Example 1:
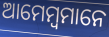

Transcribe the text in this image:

ଆମେମ୍ବମାନେ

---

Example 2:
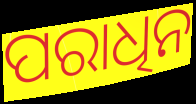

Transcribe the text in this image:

ପରାଧିନ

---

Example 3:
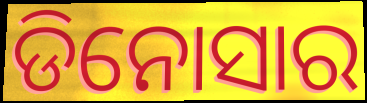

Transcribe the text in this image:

ଡିନୋସାର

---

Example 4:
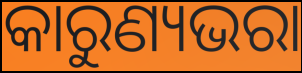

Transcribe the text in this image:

କାରୁଣ୍ୟଭରା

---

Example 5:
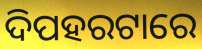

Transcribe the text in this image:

ଦିପହରଟାରେ